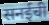
सनईची